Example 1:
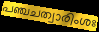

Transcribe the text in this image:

പഞ്ചചത്വാരിംശഃ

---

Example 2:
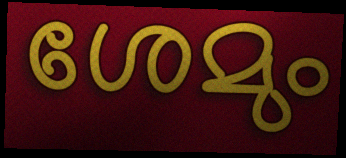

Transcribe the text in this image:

ശേമും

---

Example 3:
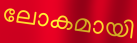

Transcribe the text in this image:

ലോകമായി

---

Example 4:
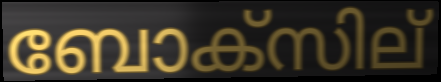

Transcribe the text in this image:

ബോക്സില്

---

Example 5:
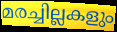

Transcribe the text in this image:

മരച്ചില്ലകളും